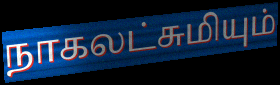
நாகலட்சுமியும்